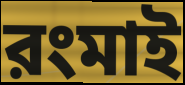
রংমাই